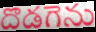
దొడగెను